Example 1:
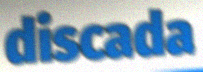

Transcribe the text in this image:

discada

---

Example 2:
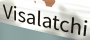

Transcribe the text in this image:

Visalatchi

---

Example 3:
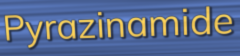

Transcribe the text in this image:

Pyrazinamide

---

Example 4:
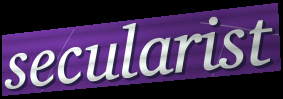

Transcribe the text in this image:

secularist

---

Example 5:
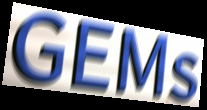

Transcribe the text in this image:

GEMs